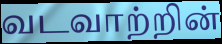
வடவாற்றின்